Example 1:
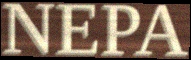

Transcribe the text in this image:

NEPA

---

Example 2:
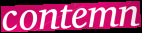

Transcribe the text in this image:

contemn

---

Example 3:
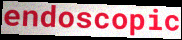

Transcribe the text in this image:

endoscopic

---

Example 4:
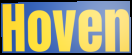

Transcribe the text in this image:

Hoven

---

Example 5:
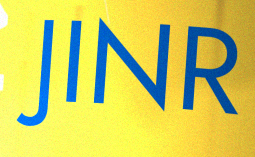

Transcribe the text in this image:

JINR